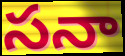
సనా